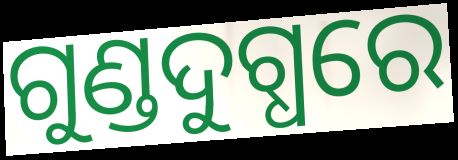
ଗୁଣ୍ଡଦୁଗ୍ଧରେ